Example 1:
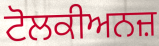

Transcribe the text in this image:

ਟੋਲਕੀਅਨਜ਼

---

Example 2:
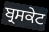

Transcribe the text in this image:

ਬ੍ਰਸਕੇਟ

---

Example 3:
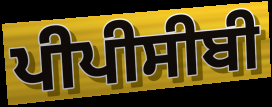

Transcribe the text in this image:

ਪੀਪੀਸੀਬੀ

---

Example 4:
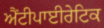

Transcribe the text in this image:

ਐਂਟੀਪਾਈਰੇਟਿਕ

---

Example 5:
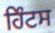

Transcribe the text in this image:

ਹਿੰਟਸ